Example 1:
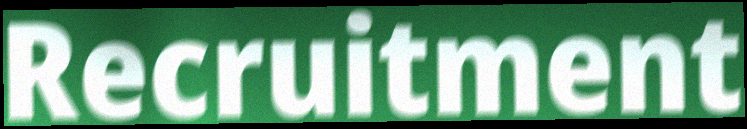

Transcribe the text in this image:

Recruitment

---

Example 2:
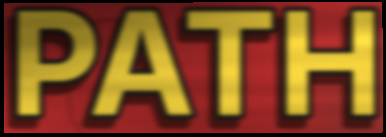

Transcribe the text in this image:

PATH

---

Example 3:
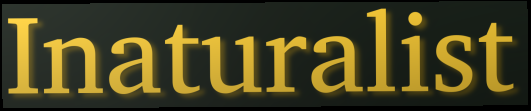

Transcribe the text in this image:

Inaturalist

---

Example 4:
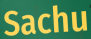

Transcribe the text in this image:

Sachu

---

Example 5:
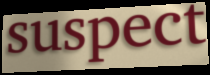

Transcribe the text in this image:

suspect